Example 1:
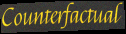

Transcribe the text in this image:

Counterfactual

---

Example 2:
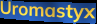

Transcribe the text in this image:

Uromastyx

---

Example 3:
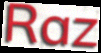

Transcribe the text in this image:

Raz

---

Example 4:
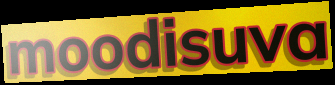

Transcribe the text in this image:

moodisuva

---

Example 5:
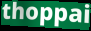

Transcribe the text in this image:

thoppai